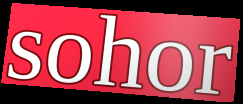
sohor